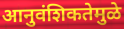
आनुवंशिकतेमुळे